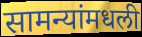
सामन्यांमधली